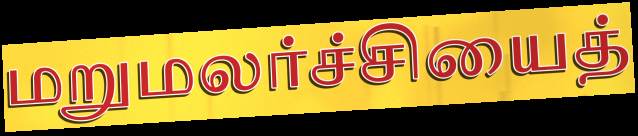
மறுமலர்ச்சியைத்